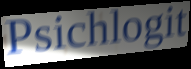
Psichlogit